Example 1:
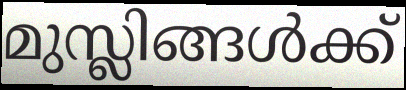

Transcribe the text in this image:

മുസ്ലിങ്ങൾക്ക്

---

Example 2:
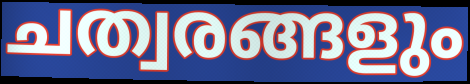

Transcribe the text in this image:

ചത്വരങ്ങളും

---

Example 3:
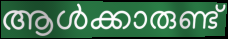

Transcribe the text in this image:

ആൾക്കാരുണ്ട്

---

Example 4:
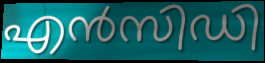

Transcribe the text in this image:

എൻസിഡി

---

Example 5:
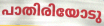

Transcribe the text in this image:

പാതിരിയോടു